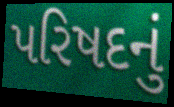
પરિષદનું